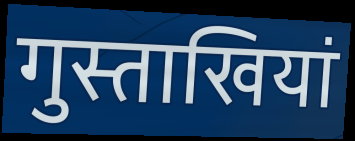
गुस्ताखियां